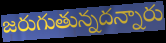
జరుగుతున్నదన్నారు